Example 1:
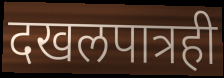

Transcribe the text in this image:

दखलपात्रही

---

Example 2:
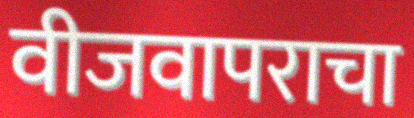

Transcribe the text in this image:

वीजवापराचा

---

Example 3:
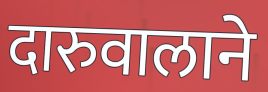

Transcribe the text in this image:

दारुवालाने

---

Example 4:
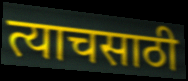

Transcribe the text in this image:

त्याचसाठी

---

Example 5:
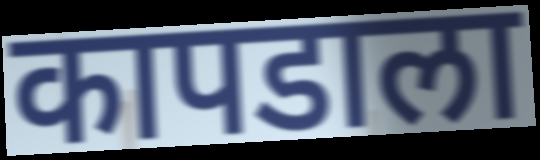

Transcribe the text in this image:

कापडाला